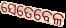
ସେତେବେଳ